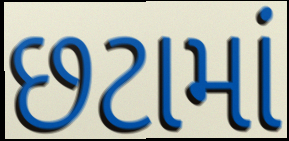
છટામાં